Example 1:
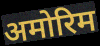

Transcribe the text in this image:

अमोरिम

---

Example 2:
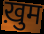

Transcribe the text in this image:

ख़ुम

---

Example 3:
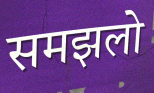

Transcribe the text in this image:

समझलो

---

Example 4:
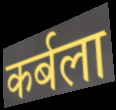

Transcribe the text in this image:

कर्बला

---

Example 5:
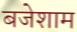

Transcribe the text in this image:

बजेशाम